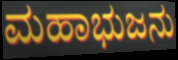
ಮಹಾಭುಜನು